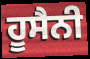
ਹੂਸੈਨੀ